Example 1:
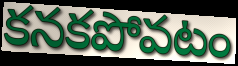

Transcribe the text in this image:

కనకపోవటం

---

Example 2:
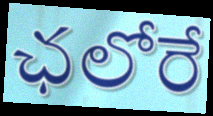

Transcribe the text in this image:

ఛలోరే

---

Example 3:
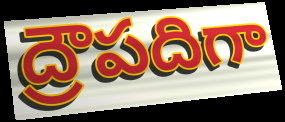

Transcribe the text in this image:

ద్రౌపదిగా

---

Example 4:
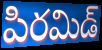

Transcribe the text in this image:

పిరమిడ్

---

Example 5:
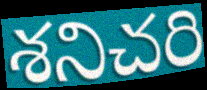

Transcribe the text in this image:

శనిచరి